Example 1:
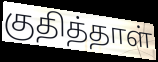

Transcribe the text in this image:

குதித்தாள்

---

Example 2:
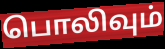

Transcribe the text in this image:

பொலிவும்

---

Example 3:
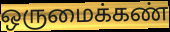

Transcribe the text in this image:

ஒருமைக்கண்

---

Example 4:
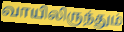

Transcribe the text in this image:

வாயிலிருந்தும்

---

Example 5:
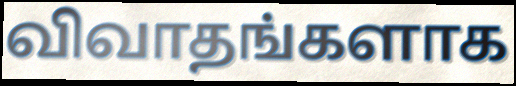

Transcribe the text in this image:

விவாதங்களாக